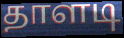
தாளடி